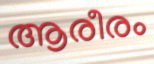
ആരീരം